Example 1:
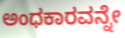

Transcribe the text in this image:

ಅಂಧಕಾರವನ್ನೇ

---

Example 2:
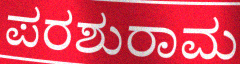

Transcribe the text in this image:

ಪರಶುರಾಮ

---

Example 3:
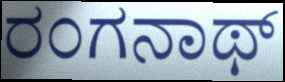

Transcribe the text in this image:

ರಂಗನಾಥ್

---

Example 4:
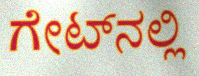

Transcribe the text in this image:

ಗೇಟ್‌ನಲ್ಲಿ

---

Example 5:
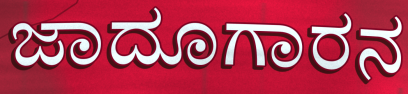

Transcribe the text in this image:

ಜಾದೂಗಾರನ